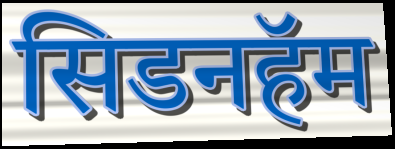
सिडनहॅम